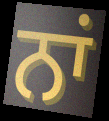
ਨਾਂ